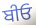
ਬੀਓ